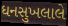
ધનસુખલાલે